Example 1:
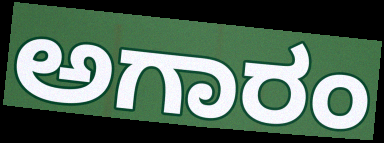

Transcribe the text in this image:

ಅಗಾರಂ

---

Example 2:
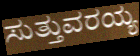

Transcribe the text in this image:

ಸುತ್ತುವರಯ್ಯ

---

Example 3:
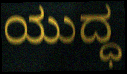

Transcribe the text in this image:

ಯುದ್ಧ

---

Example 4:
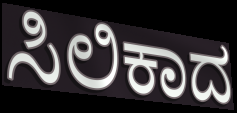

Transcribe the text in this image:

ಸಿಲಿಕಾದ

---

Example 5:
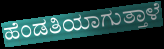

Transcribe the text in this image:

ಹೆಂಡತಿಯಾಗುತ್ತಾಳೆ